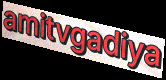
amitvgadiya